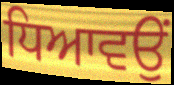
ਧਿਆਵਉਂ